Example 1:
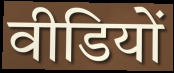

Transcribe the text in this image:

वीडियों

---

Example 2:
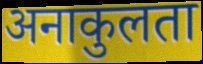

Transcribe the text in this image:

अनाकुलता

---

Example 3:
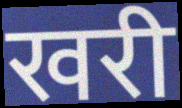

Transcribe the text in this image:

खरी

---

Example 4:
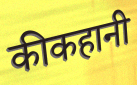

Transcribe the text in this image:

कीकहानी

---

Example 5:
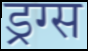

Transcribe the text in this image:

ड्रग्स